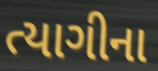
ત્યાગીના